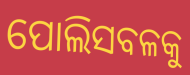
ପୋଲିସବଳକୁ